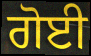
ਗੋਈ